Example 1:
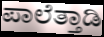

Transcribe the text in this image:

ಪಾಲೆತ್ತಾಡಿ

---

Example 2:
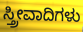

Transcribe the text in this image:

ಸ್ತ್ರೀವಾದಿಗಳು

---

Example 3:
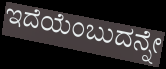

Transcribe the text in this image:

ಇದೆಯೆಂಬುದನ್ನೇ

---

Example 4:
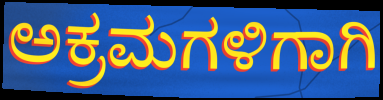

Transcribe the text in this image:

ಅಕ್ರಮಗಳಿಗಾಗಿ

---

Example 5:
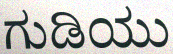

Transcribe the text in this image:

ಗುಡಿಯು